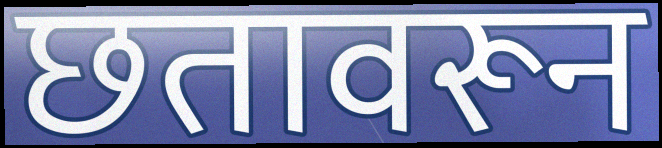
छतावरून